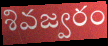
శివజ్వరం